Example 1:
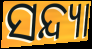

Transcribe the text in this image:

ସନ୍ଦ୍ୟା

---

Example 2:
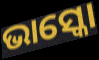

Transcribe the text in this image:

ଭାସ୍କୋ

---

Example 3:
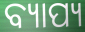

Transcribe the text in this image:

ବ୍ଯାପ୍ୟ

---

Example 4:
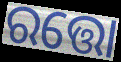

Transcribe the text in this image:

ରତ୍ତୋ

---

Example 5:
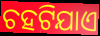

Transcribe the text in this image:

ଚହଟିଯାଏ